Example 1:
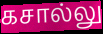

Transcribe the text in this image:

கசால்லு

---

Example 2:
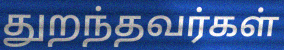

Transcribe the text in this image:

துறந்தவர்கள்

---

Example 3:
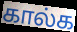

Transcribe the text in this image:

கால்க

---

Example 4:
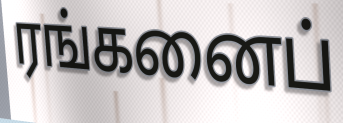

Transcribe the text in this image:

ரங்கனைப்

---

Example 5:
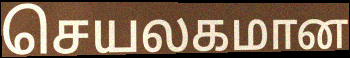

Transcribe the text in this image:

செயலகமான